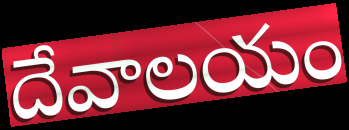
దేవాలయం